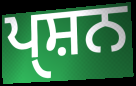
ਪੑਸ਼ਨ